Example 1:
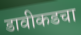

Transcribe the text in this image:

डावीकडचा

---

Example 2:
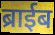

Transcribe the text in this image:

ब्राईब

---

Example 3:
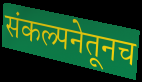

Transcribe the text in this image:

संकल्पनेतूनच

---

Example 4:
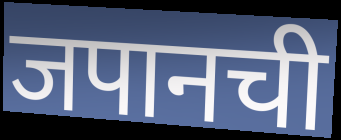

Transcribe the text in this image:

जपानची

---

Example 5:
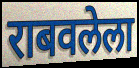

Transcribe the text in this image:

राबवलेला